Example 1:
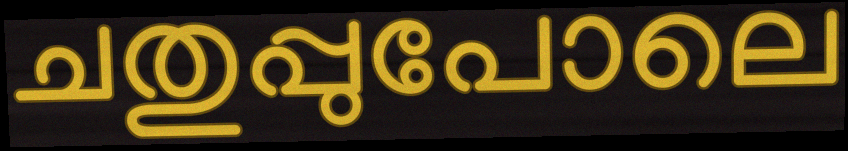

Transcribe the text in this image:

ചതുപ്പുപോലെ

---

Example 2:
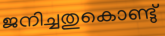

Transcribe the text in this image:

ജനിച്ചതുകൊണ്ടു്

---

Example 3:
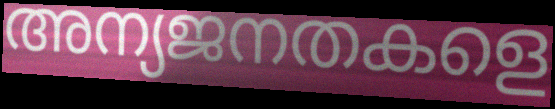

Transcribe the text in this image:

അന്യജനതകളെ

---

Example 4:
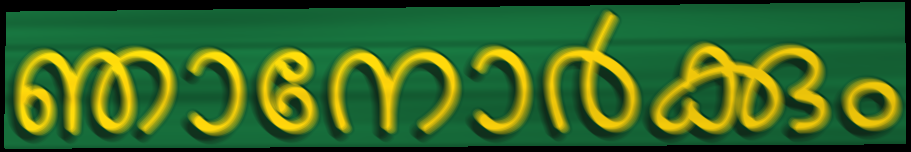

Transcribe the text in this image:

ഞാനോർക്കും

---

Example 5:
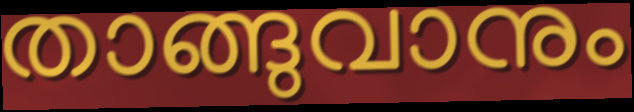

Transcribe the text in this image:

താങ്ങുവാനും